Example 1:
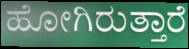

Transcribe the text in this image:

ಹೋಗಿರುತ್ತಾರೆ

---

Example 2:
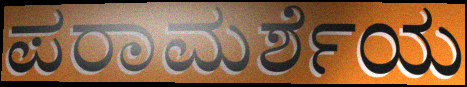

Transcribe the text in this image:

ಪರಾಮರ್ಶೆಯ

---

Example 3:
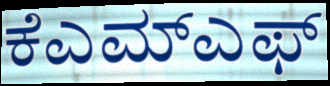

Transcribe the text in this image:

ಕೆಎಮ್ಎಫ್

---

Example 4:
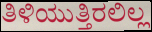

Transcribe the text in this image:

ತಿಳಿಯುತ್ತಿರಲಿಲ್ಲ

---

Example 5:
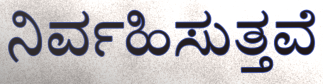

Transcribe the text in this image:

ನಿರ್ವಹಿಸುತ್ತವೆ